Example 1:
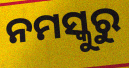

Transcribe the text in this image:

ନମସ୍କୁରୁ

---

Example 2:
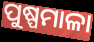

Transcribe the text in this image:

ପୁଷ୍ପମାଳା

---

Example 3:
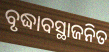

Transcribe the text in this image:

ବୃଦ୍ଧାବସ୍ଥାଜନିତ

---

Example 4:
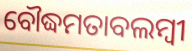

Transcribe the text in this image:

ବୌଦ୍ଧମତାବଲମ୍ବୀ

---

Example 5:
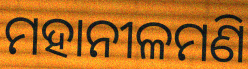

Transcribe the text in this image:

ମହାନୀଳମଣି